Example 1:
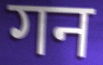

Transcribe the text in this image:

गन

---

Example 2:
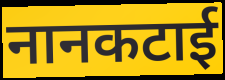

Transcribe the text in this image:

नानकटाई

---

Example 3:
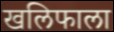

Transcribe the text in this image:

खलिफाला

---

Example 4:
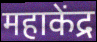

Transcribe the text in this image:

महाकेंद्र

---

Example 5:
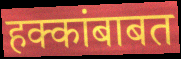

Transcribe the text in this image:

हक्कांबाबत